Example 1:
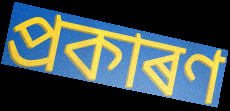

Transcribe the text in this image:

প্ৰকাৰণ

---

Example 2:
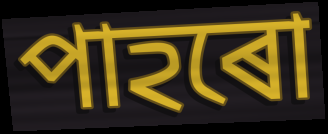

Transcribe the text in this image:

পাহৰো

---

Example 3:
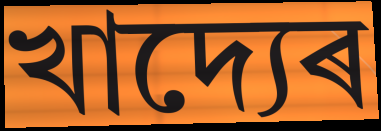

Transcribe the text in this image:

খাদ্যেৰ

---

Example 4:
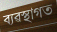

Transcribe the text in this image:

ব্যৱস্থাগত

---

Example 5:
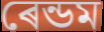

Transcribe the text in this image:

ৰেন্ডম